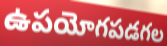
ఉపయోగపడగల